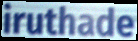
iruthade